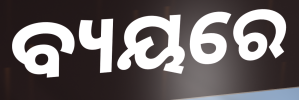
ବ୍ୟୟରେ